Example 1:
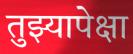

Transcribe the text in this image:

तुझ्यापेक्षा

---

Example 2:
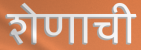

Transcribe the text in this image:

शेणाची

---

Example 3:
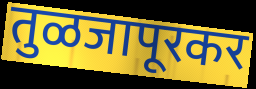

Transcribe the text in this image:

तुळजापूरकर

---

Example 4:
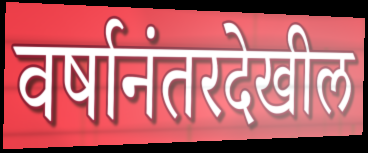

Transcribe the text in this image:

वर्षानंतरदेखील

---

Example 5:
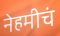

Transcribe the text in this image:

नेहमीचं